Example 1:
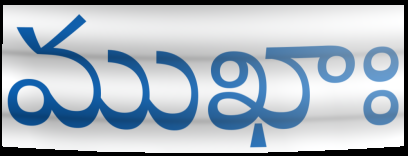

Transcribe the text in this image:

ముఖాః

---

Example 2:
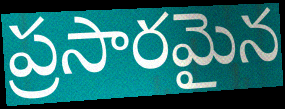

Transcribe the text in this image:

ప్రసారమైన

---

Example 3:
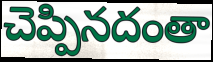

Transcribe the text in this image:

చెప్పినదంతా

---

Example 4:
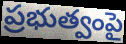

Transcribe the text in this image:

ప్రభుత్వంపై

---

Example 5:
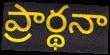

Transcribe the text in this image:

ప్రార్థనా